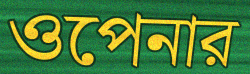
ওপেনার